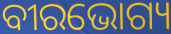
ବୀରଭୋଗ୍ୟ